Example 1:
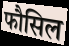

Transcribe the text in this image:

फौसिल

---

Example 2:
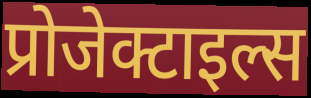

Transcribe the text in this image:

प्रोजेक्टाइल्स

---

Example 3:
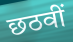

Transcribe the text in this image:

छठवीं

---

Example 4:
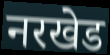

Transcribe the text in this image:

नरखेड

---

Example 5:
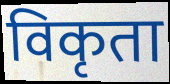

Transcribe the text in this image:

विकृता